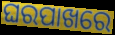
ଘରପାଖରେ